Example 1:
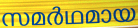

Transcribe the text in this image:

സമർഥമായ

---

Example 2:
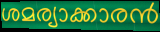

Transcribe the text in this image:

ശമര്യാക്കാരൻ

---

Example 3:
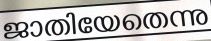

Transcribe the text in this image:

ജാതിയേതെന്നു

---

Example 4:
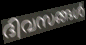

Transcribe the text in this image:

ദിവസങ്ങൾ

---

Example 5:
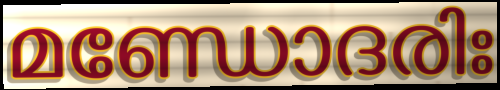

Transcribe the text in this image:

മണ്ഡോദരിഃ